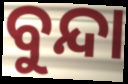
ବୁନ୍ଦା